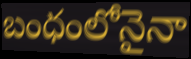
బంధంలోనైనా